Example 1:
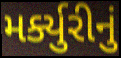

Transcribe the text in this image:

મર્ક્યુરીનું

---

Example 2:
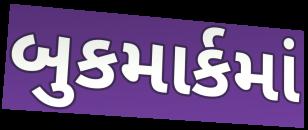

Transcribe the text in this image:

બુકમાર્કમાં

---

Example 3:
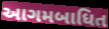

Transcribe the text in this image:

આગમબાધિત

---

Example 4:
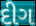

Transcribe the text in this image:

દીગ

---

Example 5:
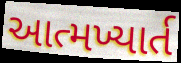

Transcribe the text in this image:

આત્મખ્યાર્ત